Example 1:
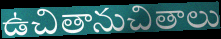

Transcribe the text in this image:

ఉచితానుచితాలు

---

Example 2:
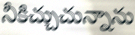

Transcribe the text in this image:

నీకిచ్చుచున్నాను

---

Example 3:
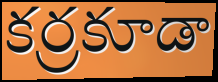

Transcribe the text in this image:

కర్రకూడా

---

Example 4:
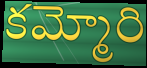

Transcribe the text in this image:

కమ్మోరి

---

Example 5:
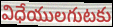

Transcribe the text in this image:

విధేయులగుటకు